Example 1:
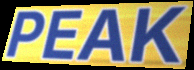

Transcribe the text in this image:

PEAK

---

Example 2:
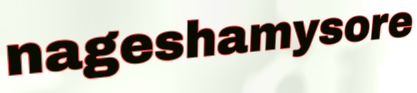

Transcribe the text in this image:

nageshamysore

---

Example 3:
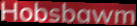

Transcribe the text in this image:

Hobsbawm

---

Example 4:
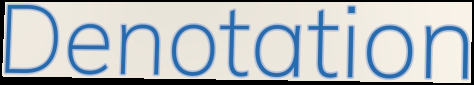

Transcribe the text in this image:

Denotation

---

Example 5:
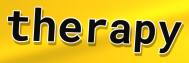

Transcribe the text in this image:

therapy